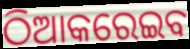
ଠିଆକରେଇବ